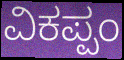
ವಿಕಪ್ಪಂ